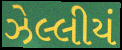
ઝેલ્લીયં